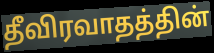
தீவிரவாதத்தின்